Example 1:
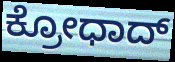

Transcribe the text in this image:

ಕ್ರೋಧಾದ್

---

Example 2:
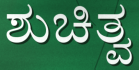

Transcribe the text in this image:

ಶುಚಿತ್ವ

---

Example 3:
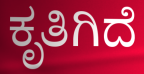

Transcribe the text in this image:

ಕೃತಿಗಿದೆ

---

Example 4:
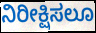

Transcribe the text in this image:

ನಿರೀಕ್ಷಿಸಲೂ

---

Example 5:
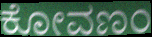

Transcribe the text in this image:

ಕೋವಣಂ